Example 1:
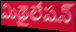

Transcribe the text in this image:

మిథైలేషన్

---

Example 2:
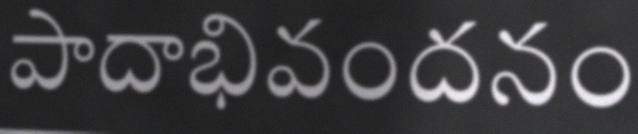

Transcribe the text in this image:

పాదాభివందనం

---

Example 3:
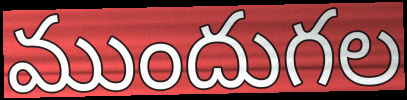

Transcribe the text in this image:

ముందుగల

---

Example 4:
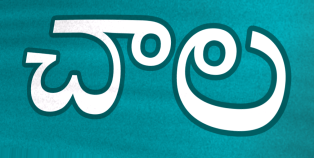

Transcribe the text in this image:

చాల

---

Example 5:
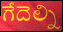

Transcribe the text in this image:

గేదెల్ని